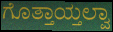
ಗೊತ್ತಾಯ್ತಲ್ವಾ